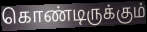
கொண்டிருக்கும்